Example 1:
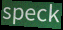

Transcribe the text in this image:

speck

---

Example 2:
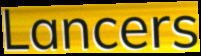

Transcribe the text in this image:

Lancers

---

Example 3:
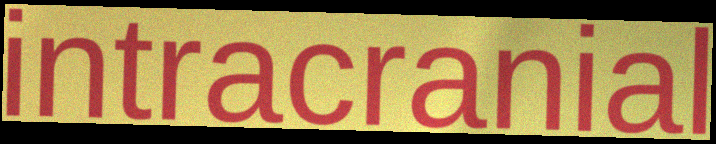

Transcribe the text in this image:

intracranial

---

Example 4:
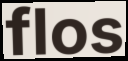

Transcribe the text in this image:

flos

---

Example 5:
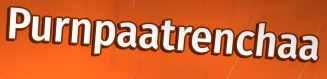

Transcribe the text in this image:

Purnpaatrenchaa